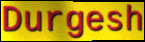
Durgesh